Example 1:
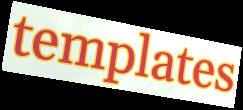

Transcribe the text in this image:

templates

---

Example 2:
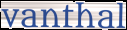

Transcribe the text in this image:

vanthal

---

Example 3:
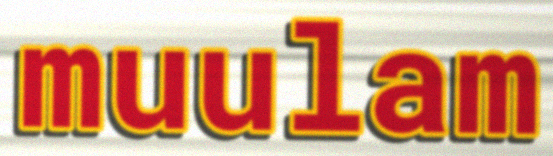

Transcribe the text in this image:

muulam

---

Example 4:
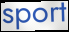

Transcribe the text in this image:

sport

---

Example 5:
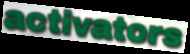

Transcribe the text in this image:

activators